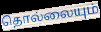
தொல்லையும்